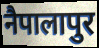
नैपालापुर